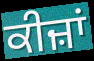
ਕੀਜ਼ਾਂ